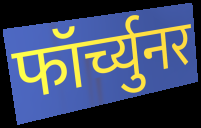
फॉर्च्युनर